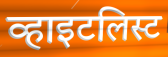
व्हाइटलिस्ट